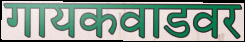
गायकवाडवर